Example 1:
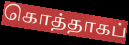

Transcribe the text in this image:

கொத்தாகப்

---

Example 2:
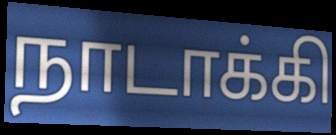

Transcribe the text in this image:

நாடாக்கி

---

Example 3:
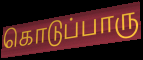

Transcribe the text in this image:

கொடுப்பாரு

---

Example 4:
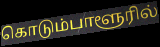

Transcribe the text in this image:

கொடும்பாளூரில்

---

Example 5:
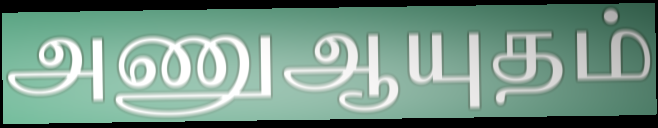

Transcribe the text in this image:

அணுஆயுதம்